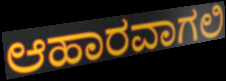
ಆಹಾರವಾಗಲಿ